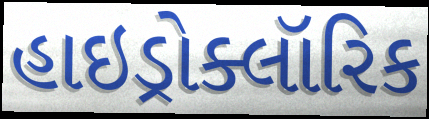
હાઇડ્રોક્લૉરિક